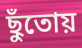
ছুঁতোয়